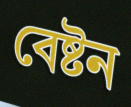
বেষ্টন